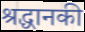
श्रद्धानकी